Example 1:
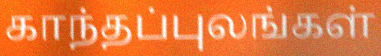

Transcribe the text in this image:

காந்தப்புலங்கள்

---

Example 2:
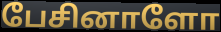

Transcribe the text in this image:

பேசினாளோ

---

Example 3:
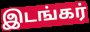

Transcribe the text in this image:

இடங்கர்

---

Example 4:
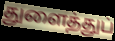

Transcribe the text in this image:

துளைத்துப்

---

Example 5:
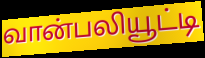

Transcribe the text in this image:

வான்பலியூட்டி